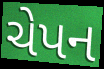
ચેપન